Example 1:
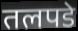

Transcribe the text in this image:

तलपडे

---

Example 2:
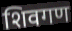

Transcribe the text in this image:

शिवगण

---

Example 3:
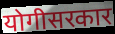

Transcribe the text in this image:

योगीसरकार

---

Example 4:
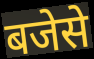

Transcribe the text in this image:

बजेसे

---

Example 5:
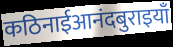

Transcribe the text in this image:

कठिनाईआनंदबुराइयाँ